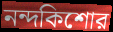
নন্দকিশোর